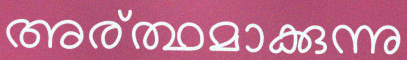
അര്ത്ഥമാക്കുന്നു